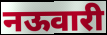
नऊवारी